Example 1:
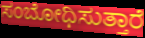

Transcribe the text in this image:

ಸಂಬೋಧಿಸುತ್ತಾರೆ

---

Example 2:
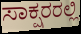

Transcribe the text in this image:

ಸಾಕ್ಷರರಲ್ಲಿ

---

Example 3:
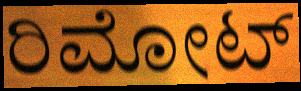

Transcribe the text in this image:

ರಿಮೋಟ್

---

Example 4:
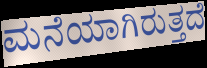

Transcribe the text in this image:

ಮನೆಯಾಗಿರುತ್ತದೆ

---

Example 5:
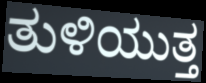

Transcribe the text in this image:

ತುಳಿಯುತ್ತ